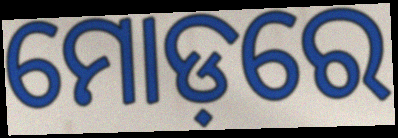
ମୋଡ଼ରେ